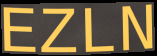
EZLN